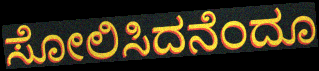
ಸೋಲಿಸಿದನೆಂದೂ